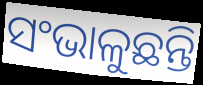
ସଂଭାଳୁଛନ୍ତି